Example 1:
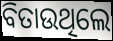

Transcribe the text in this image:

ବିତାଉଥିଲେ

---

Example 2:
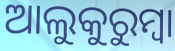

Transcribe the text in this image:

ଆଲୁକୁରୁମ୍ବା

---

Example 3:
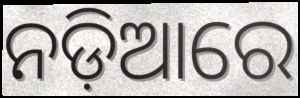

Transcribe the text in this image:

ନଡ଼ିଆରେ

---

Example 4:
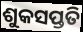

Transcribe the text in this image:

ଶୁକସପ୍ତତି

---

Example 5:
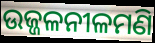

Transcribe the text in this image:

ଉଜ୍ଜଳନୀଳମଣି